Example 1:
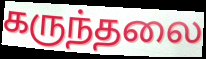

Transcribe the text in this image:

கருந்தலை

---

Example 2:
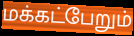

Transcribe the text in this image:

மக்கட்பேறும்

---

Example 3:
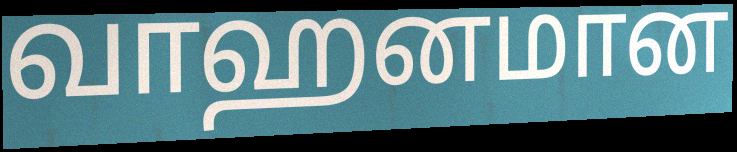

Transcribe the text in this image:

வாஹனமான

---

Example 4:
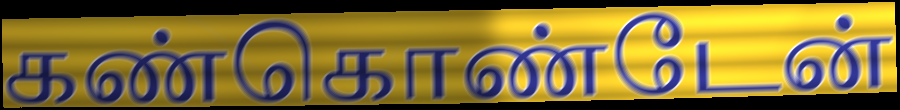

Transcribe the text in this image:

கண்கொண்டேன்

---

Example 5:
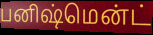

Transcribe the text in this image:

பனிஷ்மென்ட்